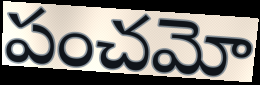
పంచమో